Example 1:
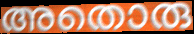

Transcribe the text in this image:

അതൊരു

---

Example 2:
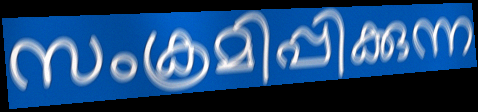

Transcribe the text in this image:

സംക്രമിപ്പിക്കുന്ന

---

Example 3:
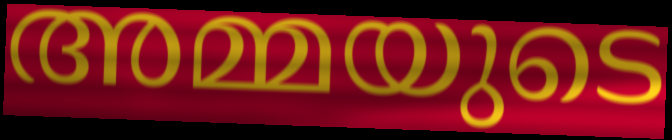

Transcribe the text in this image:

അമ്മയുടെ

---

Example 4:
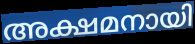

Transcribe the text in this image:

അക്ഷമനായി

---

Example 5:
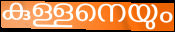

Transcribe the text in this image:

കുള്ളനെയും